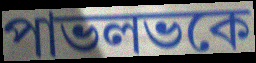
পাভলভকে